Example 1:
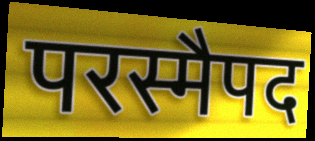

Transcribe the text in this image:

परस्मैपद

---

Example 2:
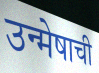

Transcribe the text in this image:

उन्मेषाची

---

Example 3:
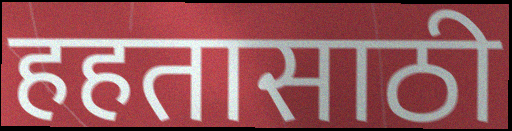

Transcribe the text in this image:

हहतासाठी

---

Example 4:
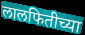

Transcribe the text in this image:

लालफितीच्या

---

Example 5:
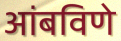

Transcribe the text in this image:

आंबविणे